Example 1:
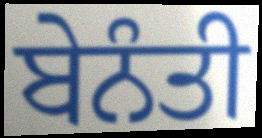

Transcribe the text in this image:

ਬੇਨੰਤੀ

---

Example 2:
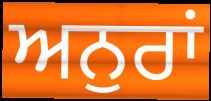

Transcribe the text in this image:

ਅਨੁਰਾਂ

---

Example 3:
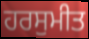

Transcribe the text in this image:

ਹਰਸੁਮੀਤ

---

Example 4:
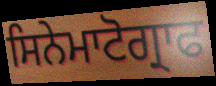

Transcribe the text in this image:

ਸਿਨੇਮਾਟੋਗ੍ਰਾਫ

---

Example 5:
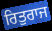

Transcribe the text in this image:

ਰਿਤੁਰਾਜ